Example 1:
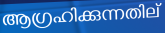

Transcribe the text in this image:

ആഗ്രഹിക്കുന്നതില്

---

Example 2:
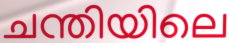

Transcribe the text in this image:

ചന്തിയിലെ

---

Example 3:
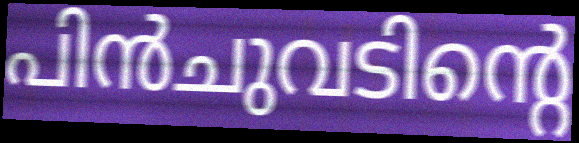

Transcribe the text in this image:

പിൻചുവടിന്റെ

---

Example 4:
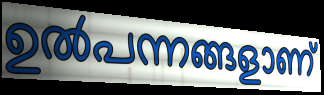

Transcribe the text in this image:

ഉൽപന്നങ്ങളാണ്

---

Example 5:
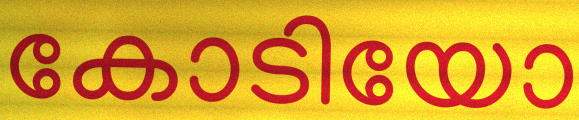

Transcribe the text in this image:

കോടിയോ